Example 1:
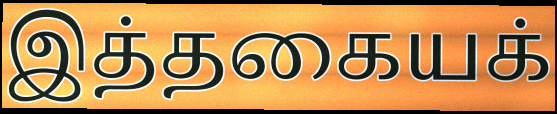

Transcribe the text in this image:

இத்தகையக்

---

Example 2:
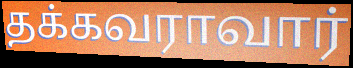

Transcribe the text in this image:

தக்கவராவார்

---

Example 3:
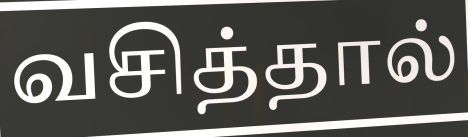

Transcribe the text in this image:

வசித்தால்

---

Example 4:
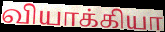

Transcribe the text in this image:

வியாக்கியா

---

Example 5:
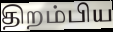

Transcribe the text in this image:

திறம்பிய